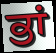
ਭਾਂ